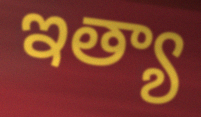
ఇత్యా